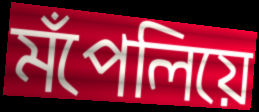
মঁপেলিয়ে